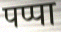
पप्‍पा